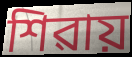
শিৱায়